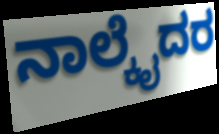
ನಾಲ್ಕೈದರ